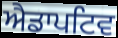
ਐਡਾਪਟਿਵ